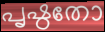
പൃഷ്ഠതോ